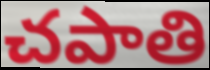
చపాతి